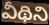
వీథిని